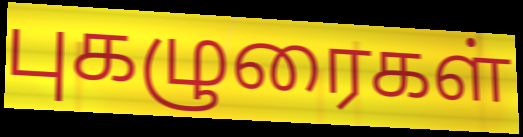
புகழுரைகள்